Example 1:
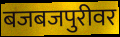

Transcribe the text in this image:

बजबजपुरीवर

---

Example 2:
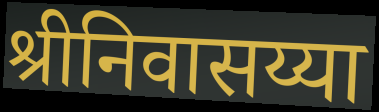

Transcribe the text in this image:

श्रीनिवासय्या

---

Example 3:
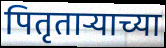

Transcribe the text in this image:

पितृताऱ्याच्या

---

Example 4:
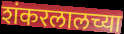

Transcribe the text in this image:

शंकरलालच्या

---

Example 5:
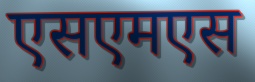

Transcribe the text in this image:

एसएमएस